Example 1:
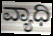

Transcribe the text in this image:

ವ್ಯಾಧಿ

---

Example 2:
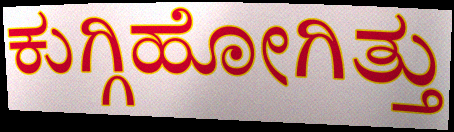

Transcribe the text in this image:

ಕುಗ್ಗಿಹೋಗಿತ್ತು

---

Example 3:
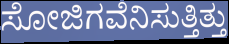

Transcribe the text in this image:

ಸೋಜಿಗವೆನಿಸುತ್ತಿತ್ತು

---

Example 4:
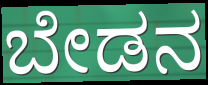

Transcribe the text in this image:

ಬೇಡನ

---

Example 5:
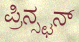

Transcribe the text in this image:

ಪ್ರಿನ್ಸ್ಟನ್